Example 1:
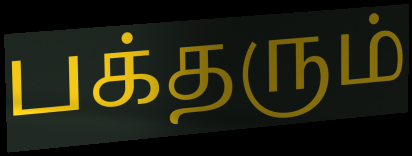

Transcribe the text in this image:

பக்தரும்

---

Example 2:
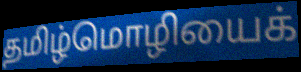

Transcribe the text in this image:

தமிழ்மொழியைக்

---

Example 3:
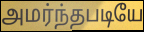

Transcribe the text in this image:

அமர்ந்தபடியே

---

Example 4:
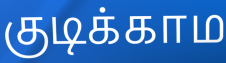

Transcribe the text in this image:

குடிக்காம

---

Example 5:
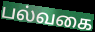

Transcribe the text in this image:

பல்வகை